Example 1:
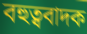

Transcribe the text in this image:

বহুত্ববাদক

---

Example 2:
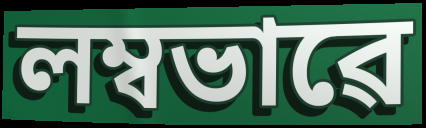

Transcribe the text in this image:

লম্বভাৱে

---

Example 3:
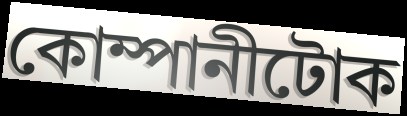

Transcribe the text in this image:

কোম্পানীটোক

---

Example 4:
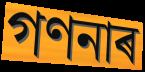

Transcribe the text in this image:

গণনাৰ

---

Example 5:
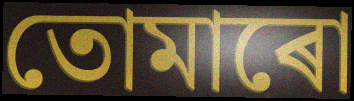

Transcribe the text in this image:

তোমাৰো